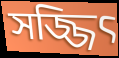
সজ্জিৎ